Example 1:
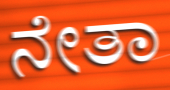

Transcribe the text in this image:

ನೇತಾ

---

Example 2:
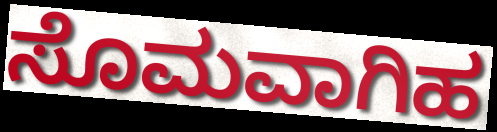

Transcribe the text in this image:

ಸೊಮವಾಗಿಹ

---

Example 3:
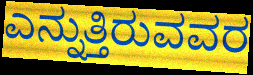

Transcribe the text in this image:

ಎನ್ನುತ್ತಿರುವವರ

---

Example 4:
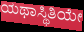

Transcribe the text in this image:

ಯಥಾಸ್ಥಿತಿಯೇ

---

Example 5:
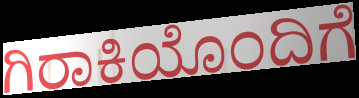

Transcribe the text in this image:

ಗಿರಾಕಿಯೊಂದಿಗೆ